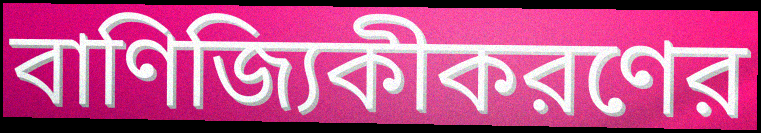
বাণিজ্যিকীকরণের